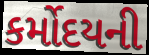
કર્મોદયની